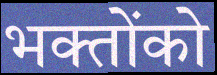
भक्तोंको